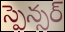
స్పెన్సర్